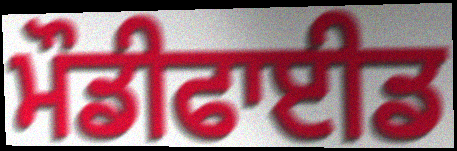
ਮੌਡੀਫਾਈਡ